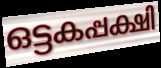
ഒട്ടകപ്പക്ഷി